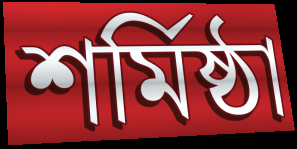
শর্মিষ্ঠা